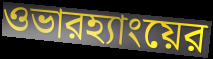
ওভারহ্যাংয়ের